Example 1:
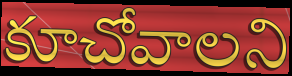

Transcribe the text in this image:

కూచోవాలని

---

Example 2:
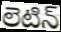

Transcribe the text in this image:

లెటిన్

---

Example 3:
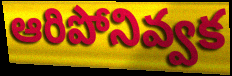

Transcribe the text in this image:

ఆరిపోనివ్వక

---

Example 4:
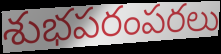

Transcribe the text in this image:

శుభపరంపరలు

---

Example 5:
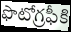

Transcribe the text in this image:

ఫొటోగ్రఫీకి